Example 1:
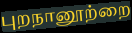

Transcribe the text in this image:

புறநானூற்றை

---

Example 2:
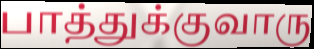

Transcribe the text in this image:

பாத்துக்குவாரு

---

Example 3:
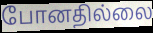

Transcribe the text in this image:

போனதில்லை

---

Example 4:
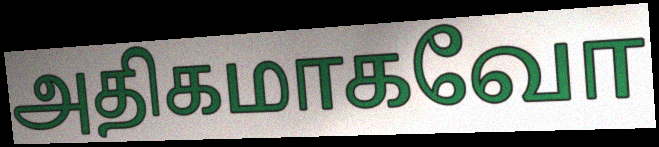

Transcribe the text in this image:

அதிகமாகவோ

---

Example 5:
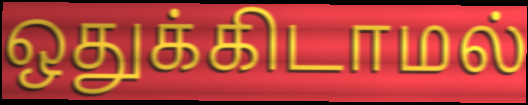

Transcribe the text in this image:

ஒதுக்கிடாமல்